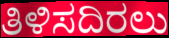
ತಿಳಿಸದಿರಲು